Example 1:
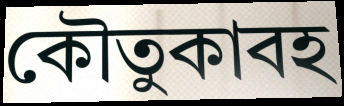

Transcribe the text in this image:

কৌতুকাবহ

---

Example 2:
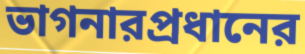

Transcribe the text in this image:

ভাগনারপ্রধানের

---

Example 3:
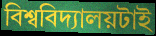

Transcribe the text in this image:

বিশ্ববিদ্যালয়টাই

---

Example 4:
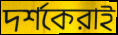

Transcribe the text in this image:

দর্শকেরাই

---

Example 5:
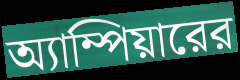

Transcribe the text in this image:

অ্যাম্পিয়ারের